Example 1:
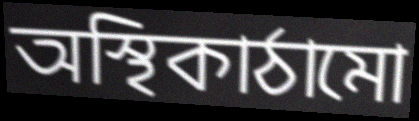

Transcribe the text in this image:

অস্থিকাঠামো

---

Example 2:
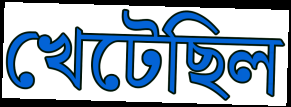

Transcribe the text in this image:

খেটেছিল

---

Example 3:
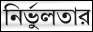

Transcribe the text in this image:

নির্ভুলতার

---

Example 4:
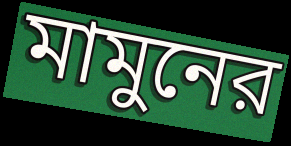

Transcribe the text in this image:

মামুনের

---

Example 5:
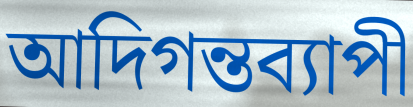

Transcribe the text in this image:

আদিগন্তব্যাপী